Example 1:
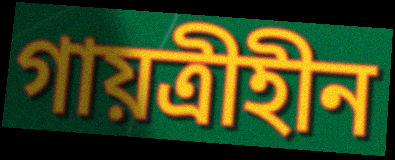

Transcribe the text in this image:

গায়ত্রীহীন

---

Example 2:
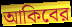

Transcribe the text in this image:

আকিবের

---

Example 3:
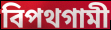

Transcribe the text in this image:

বিপথগামী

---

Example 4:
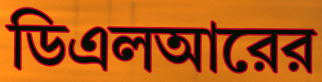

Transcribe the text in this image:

ডিএলআরের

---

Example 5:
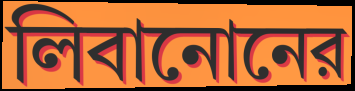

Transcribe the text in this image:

লিবানোনের